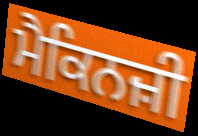
ਮੈਕਿਨਜ਼ੀ